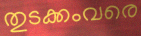
തുടക്കംവരെ